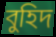
বুহিদ